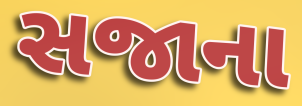
સજાના